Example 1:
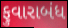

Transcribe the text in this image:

ફુવારાબંધ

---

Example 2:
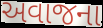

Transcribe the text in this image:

અવાજના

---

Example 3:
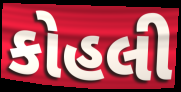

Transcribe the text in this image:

કોહલી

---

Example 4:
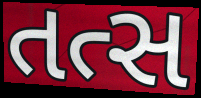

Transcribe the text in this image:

તત્સ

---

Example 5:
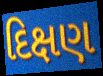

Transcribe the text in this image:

દિક્ષણ